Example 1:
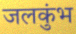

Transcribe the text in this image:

जलकुंभ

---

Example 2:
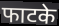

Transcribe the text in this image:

फाटके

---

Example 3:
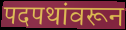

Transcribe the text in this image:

पदपथांवरून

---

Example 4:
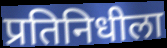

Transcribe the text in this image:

प्रतिनिधीला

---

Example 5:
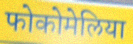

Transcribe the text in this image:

फोकोमेलिया